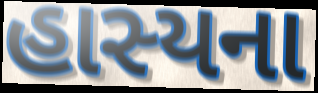
હાસ્યના